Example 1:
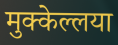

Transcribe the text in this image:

मुक्केल्लया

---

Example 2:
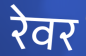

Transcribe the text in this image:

रेवर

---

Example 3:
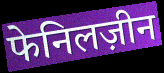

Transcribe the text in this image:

फेनिलज़ीन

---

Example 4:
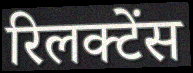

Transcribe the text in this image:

रिलक्टेंस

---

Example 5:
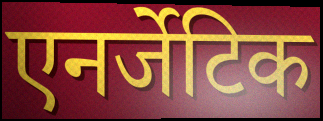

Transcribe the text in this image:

एनर्जेटिक